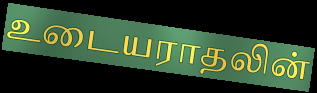
உடையராதலின்